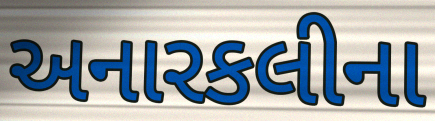
અનારકલીના